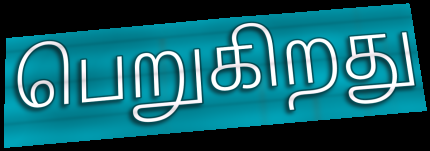
பெறுகிறது